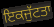
ਇਕਜੁੱਟਤਾ